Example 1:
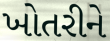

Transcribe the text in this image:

ખોતરીને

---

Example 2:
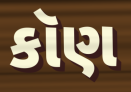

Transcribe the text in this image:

કૉણ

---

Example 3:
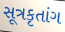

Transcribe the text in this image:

સૂત્રકૃતાંગ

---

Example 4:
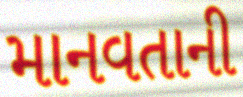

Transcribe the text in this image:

માનવતાની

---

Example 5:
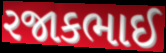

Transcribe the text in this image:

રજાકભાઈ